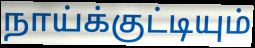
நாய்க்குட்டியும்